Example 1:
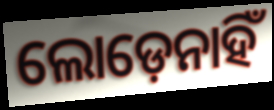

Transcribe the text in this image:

ଲୋଡ଼େନାହିଁ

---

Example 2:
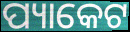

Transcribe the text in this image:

ପ୍ୟାକେଟ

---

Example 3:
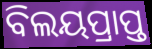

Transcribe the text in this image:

ବିଲୟପ୍ରାପ୍ତ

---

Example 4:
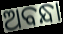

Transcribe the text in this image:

ଅବନ୍ଧା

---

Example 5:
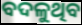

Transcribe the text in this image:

ବଦଳୁଥିବ